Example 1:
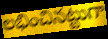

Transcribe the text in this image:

లభించినట్టుగా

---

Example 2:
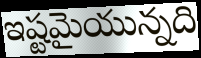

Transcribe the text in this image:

ఇష్టమైయున్నది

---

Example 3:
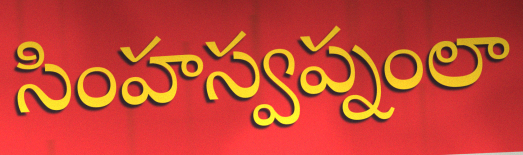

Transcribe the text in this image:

సింహస్వప్నంలా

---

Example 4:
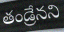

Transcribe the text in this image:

తండ్రేనని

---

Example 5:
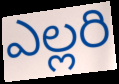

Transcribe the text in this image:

ఎల్లరి